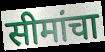
सीमांचा